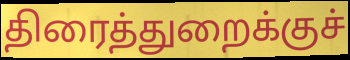
திரைத்துறைக்குச்